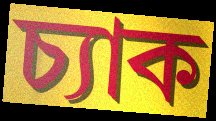
চ্যাক